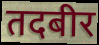
तदबीर